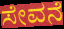
ಸೇವನೆ